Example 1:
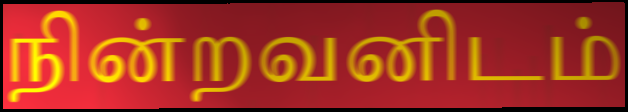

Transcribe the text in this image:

நின்றவனிடம்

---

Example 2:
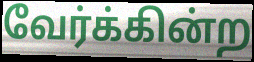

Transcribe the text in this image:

வேர்க்கின்ற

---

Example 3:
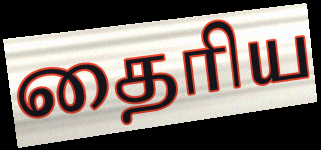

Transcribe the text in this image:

தைரிய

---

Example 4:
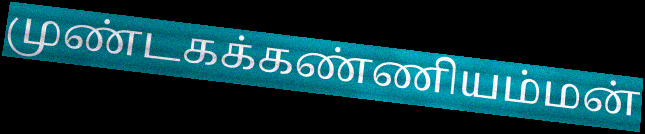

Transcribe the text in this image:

முண்டகக்கண்ணியம்மன்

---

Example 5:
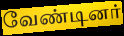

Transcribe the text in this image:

வேண்டினர்